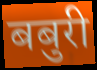
बबुरी